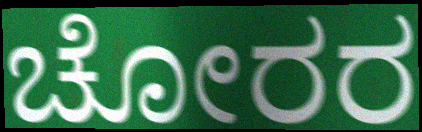
ಚೋರರ